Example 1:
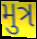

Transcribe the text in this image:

મુત્ર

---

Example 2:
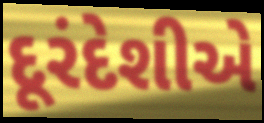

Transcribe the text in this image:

દૂરંદેશીએ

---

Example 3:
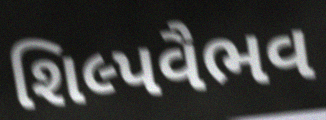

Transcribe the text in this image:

શિલ્પવૈભવ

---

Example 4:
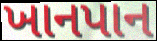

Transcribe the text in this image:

ખાનપાન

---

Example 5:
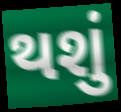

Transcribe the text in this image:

થશું